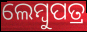
ଲେମ୍ବୁପତ୍ର